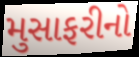
મુસાફરીનો